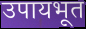
उपायभूत